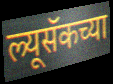
ल्यूसॅकच्या